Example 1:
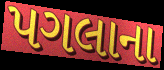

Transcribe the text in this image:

પગલાના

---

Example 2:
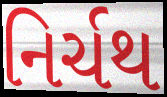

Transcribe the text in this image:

નિર્ચથ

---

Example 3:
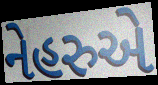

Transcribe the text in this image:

નેહરુએ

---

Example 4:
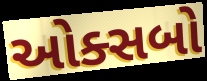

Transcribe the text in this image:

ઓક્સબો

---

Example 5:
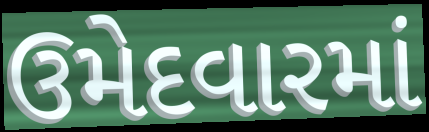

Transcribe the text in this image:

ઉમેદવારમાં